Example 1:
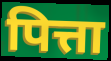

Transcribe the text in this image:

पित्ता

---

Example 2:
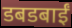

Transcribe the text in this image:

डबडबाईं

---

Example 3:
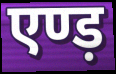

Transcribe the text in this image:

एण्ड़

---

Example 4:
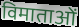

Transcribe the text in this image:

विमाताओं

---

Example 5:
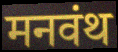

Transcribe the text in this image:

मनवंथ